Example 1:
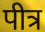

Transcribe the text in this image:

पीत्र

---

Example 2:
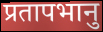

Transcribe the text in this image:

प्रतापभानु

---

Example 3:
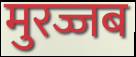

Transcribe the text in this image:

मुरज्जब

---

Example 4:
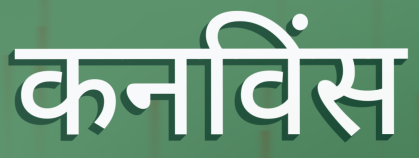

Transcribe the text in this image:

कनविंस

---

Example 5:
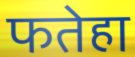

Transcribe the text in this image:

फतेहा